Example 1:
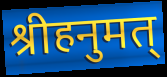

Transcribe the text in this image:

श्रीहनुमत्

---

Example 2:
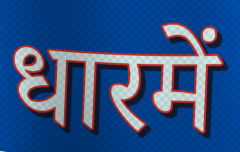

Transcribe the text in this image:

धारमें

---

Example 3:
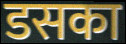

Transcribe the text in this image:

डसका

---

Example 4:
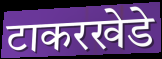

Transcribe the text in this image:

टाकरखेडे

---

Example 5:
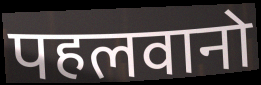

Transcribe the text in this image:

पहलवानो